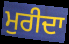
ਮੁਰੀਦਾ